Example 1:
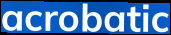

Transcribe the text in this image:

acrobatic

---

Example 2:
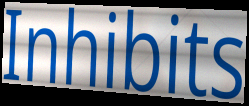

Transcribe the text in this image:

Inhibits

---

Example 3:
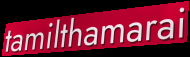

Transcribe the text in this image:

tamilthamarai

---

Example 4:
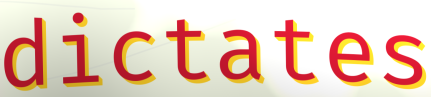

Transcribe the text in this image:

dictates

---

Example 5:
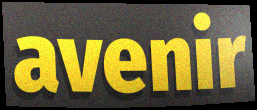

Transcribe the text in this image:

avenir